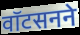
वॉटसनने